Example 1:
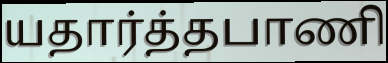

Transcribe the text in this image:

யதார்த்தபாணி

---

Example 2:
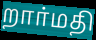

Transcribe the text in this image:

றார்மதி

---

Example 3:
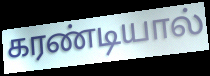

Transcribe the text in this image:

கரண்டியால்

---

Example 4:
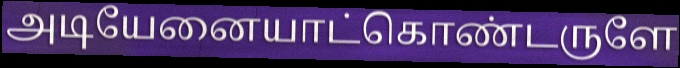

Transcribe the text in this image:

அடியேனையாட்கொண்டருளே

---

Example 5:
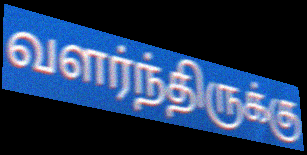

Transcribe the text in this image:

வளர்ந்திருக்கு